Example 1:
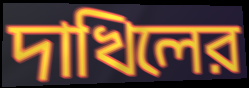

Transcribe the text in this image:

দাখিলের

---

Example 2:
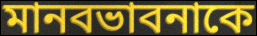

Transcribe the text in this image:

মানবভাবনাকে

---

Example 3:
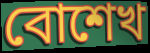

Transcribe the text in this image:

বোশেখ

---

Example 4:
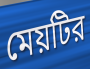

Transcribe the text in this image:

মেয়টির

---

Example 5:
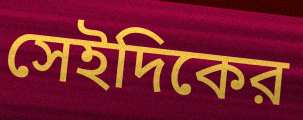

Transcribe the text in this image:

সেইদিকের